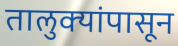
तालुक्यांपासून